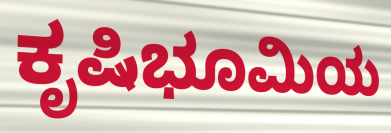
ಕೃಷಿಭೂಮಿಯ